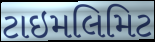
ટાઇમલિમિટ